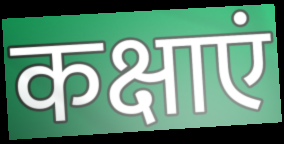
कक्षाएं